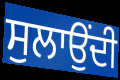
ਸੁਲਾਉਂਦੀ